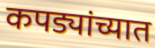
कपड्यांच्यात